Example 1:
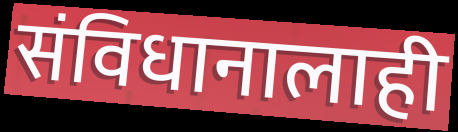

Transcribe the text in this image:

संविधानालाही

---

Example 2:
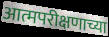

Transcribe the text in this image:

आत्मपरीक्षणाच्या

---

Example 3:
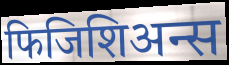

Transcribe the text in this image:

फिजिशिअन्स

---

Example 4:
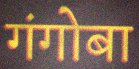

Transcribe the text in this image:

गंगोबा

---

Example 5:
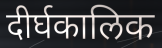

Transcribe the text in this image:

दीर्घकालिक